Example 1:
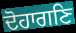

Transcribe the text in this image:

ਦੋਹਾਗਣਿ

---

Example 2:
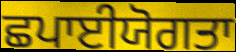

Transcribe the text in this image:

ਛਪਾਈਯੋਗਤਾ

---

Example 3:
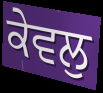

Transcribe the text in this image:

ਕੇਵਲੁ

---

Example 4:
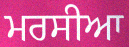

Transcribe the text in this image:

ਮਰਸੀਆ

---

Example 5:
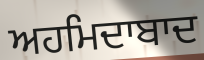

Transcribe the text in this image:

ਅਹਮਿਦਾਬਾਦ